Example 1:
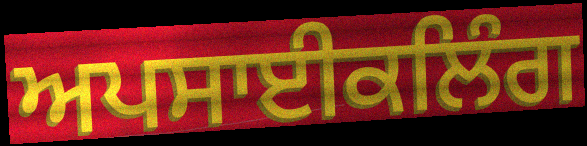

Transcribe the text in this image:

ਅਪਸਾਈਕਲਿੰਗ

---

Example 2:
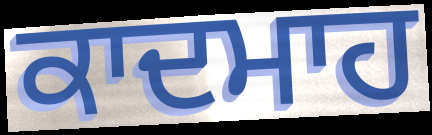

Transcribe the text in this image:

ਕਾਦਮਾਹ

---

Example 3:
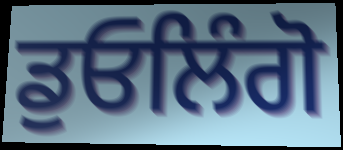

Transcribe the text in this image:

ਡੁਓਲਿੰਗੋ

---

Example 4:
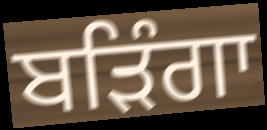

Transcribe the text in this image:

ਬੜਿੰਗਾ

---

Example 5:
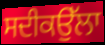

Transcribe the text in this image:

ਸਦੀਕਉੱਲਾ